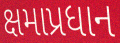
ક્ષમાપ્રધાન